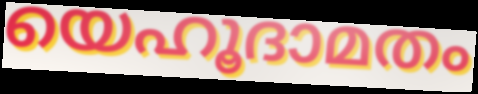
യെഹൂദാമതം